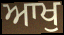
ਆਖੁ